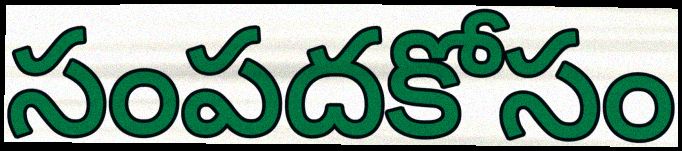
సంపదకోసం